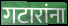
गटारांना